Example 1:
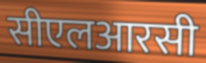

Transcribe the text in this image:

सीएलआरसी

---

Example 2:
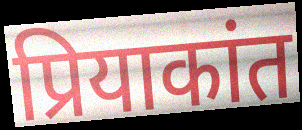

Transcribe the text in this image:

प्रियाकांत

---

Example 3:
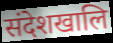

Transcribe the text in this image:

संदेशखालि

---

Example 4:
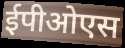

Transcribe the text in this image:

ईपीओएस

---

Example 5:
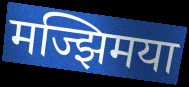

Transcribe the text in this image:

मज्झिमया